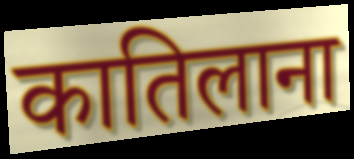
कातिलाना